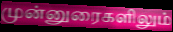
முன்னுரைகளிலும்